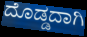
ದೊಡ್ಡದಾಗಿ